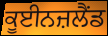
ਕੂਈਨਜ਼ਲੈਂਡ